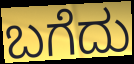
ಬಗೆದು